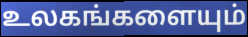
உலகங்களையும்